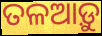
ତଳଆଡ଼ୁ